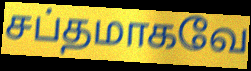
சப்தமாகவே